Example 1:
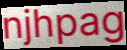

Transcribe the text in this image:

njhpag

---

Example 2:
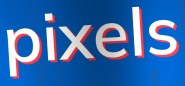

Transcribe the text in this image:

pixels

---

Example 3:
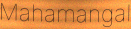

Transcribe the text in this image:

Mahamangal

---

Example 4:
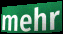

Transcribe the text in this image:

mehr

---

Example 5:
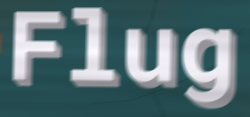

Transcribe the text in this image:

Flug